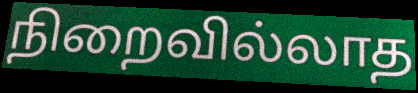
நிறைவில்லாத